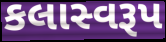
કલાસ્વરૂપ